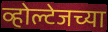
व्होल्टेजच्या